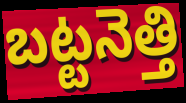
బట్టనెత్తి